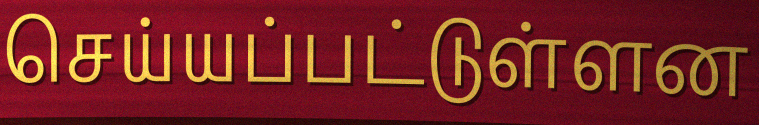
செய்யப்பட்டுள்ளன